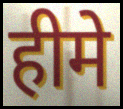
हीमे